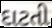
દાટતી